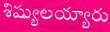
శిష్యులయ్యారు